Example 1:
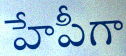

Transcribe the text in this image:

హేపీగా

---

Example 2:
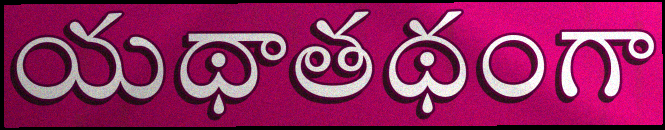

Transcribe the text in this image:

యథాతథంగా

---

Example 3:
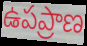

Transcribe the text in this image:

ఉపప్రాణ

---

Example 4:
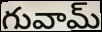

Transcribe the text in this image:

గువామ్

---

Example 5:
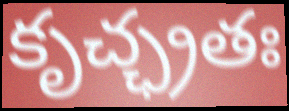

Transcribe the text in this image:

కృచ్ఛ్రతః